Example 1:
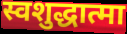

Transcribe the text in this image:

स्वशुद्धात्मा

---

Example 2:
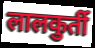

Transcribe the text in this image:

लालकुर्ती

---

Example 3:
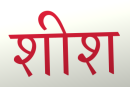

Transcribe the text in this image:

शीश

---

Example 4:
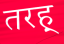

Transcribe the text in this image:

तरह्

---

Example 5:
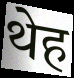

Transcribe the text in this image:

थेह